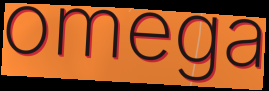
omega